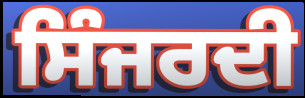
ਸਿੰਜਰਦੀ